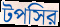
টপসির